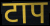
टाप